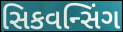
સિકવન્સિંગ